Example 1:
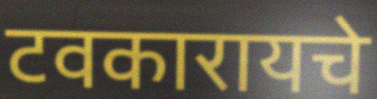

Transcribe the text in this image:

टवकारायचे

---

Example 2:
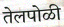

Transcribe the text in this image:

तेलपोळी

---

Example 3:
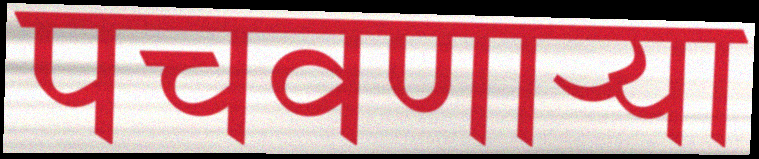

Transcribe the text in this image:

पचवणाऱ्या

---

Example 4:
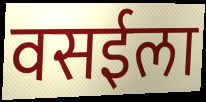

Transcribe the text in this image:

वसईला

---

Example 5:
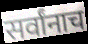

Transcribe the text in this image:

सर्वांनाच